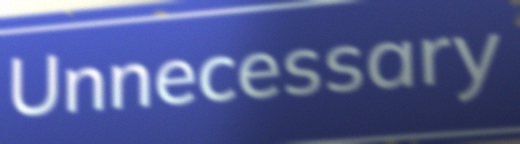
Unnecessary